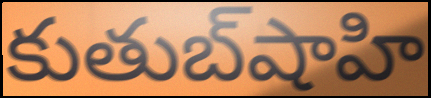
కుతుబ్‌షాహి